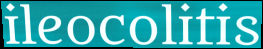
ileocolitis